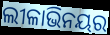
ଲୀଳାଭିନୟର